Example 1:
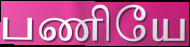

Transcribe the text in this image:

பணியே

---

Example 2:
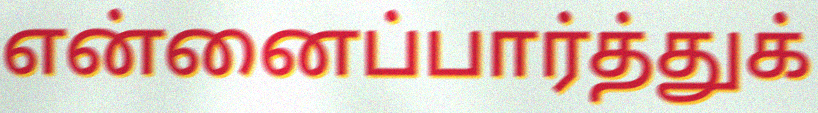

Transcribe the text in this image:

என்னைப்பார்த்துக்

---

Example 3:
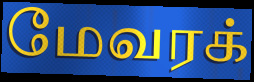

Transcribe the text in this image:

மேவரக்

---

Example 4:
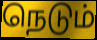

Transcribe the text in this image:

நெடும்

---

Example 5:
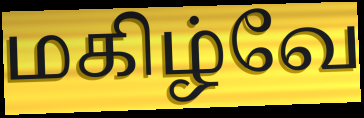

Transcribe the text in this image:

மகிழ்வே